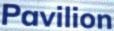
Pavilion